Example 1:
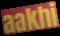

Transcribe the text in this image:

aakhi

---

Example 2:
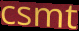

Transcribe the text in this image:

csmt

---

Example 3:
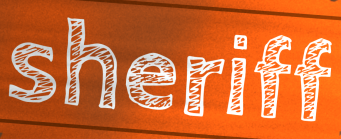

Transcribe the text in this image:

sheriff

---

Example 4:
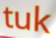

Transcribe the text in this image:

tuk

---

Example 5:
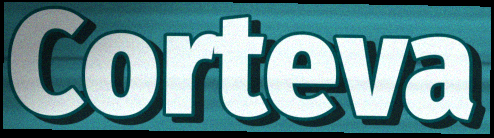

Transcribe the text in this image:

Corteva